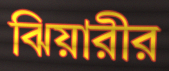
ঝিয়ারীর